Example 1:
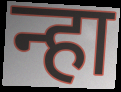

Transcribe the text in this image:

न्हा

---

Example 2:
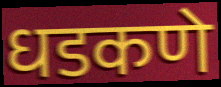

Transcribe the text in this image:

धडकणे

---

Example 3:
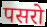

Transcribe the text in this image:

पसरो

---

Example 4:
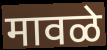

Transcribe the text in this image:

मावळे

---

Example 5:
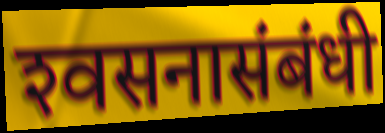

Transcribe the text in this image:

श्वसनासंबंधी